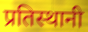
प्रतिस्थानी